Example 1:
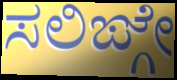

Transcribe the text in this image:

ಸಲಿಙ್ಗೇ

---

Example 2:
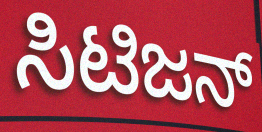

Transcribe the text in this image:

ಸಿಟಿಜನ್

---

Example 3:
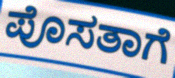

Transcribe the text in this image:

ಪೊಸತಾಗೆ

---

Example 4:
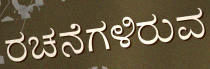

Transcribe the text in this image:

ರಚನೆಗಳಿರುವ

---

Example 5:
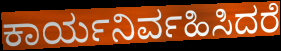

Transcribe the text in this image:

ಕಾರ್ಯನಿರ್ವಹಿಸಿದರೆ